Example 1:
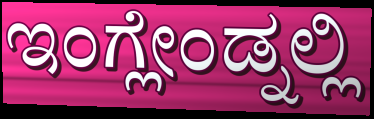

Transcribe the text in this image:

ಇಂಗ್ಲೇಂಡ್ನಲ್ಲಿ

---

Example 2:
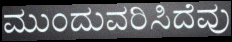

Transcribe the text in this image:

ಮುಂದುವರಿಸಿದೆವು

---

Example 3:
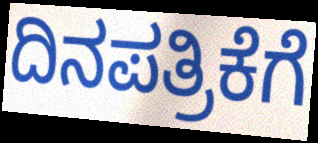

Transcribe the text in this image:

ದಿನಪತ್ರಿಕೆಗೆ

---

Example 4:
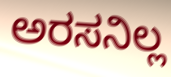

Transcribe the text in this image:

ಅರಸನಿಲ್ಲ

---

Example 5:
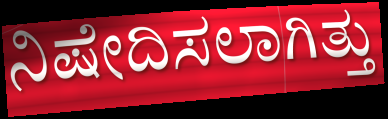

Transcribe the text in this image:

ನಿಷೇದಿಸಲಾಗಿತ್ತು